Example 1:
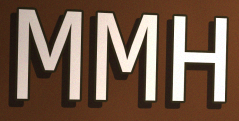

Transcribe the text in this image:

MMH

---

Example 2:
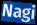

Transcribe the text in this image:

Nagi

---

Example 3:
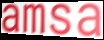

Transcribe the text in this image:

amsa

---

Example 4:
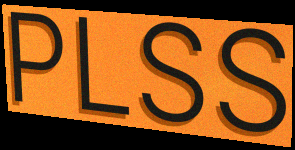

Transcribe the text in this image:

PLSS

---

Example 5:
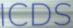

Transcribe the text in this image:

ICDS